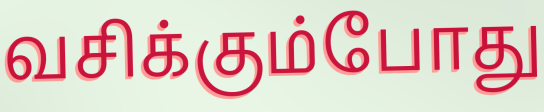
வசிக்கும்போது